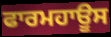
ਫਾਰਮਹਾਊਸ